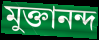
মুক্তানন্দ